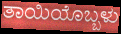
ತಾಯಿಯೊಬ್ಬಳು